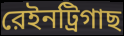
রেইনট্রিগাছ